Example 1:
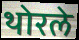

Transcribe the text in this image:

थोरले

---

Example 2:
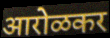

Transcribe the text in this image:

आरोळकर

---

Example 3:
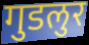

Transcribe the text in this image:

गुडलुर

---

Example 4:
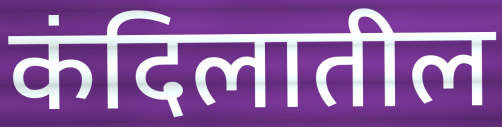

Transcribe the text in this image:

कंदिलातील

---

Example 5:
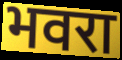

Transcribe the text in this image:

भवरा